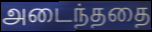
அடைந்ததை